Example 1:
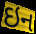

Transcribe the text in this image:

ઇન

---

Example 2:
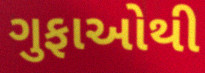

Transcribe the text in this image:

ગુફાઓથી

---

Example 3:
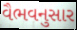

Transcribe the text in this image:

વૈભવનુસાર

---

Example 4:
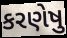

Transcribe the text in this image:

કરણેષુ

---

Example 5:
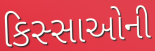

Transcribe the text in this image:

કિસ્સાઓની